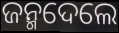
ଜନ୍ମଦେଲେ